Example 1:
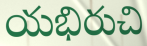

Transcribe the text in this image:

యభిరుచి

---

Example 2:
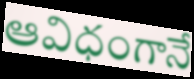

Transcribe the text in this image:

ఆవిధంగానే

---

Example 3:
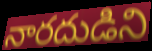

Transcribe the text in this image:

నారదుడిని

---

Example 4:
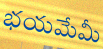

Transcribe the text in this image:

భయమేమీ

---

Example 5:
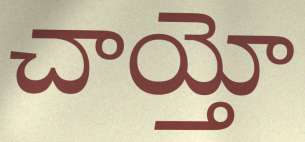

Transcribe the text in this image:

చాయ్తో